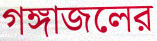
গঙ্গাজলের